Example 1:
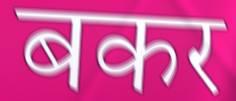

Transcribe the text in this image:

बकर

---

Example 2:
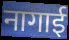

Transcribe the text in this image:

नागाई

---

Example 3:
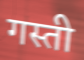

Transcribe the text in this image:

गस्ती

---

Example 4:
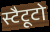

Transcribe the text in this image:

स्टैटूटो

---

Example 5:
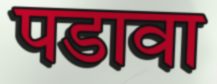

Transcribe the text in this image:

पडावा